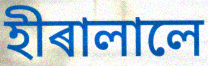
হীৰালালে